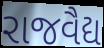
રાજવૈદ્ય